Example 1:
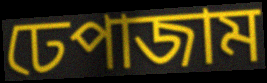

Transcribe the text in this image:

ঢেপাজাম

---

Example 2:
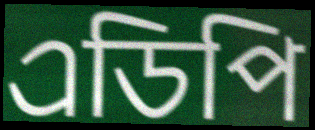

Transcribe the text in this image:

এডিপি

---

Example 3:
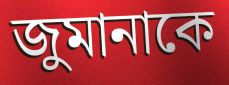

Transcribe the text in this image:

জুমানাকে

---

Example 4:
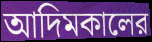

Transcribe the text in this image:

আদিমকালের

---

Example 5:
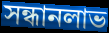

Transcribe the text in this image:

সন্ধানলাভ